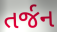
તર્જન